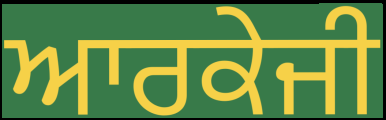
ਆਰਕੇਜੀ